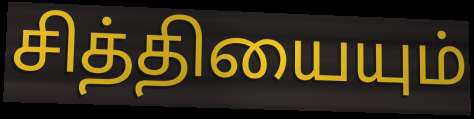
சித்தியையும்